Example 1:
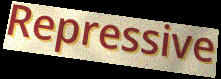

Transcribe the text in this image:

Repressive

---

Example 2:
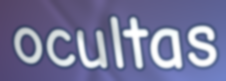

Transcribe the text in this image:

ocultas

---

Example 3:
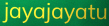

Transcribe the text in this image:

jayajayatu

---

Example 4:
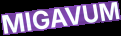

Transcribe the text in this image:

MIGAVUM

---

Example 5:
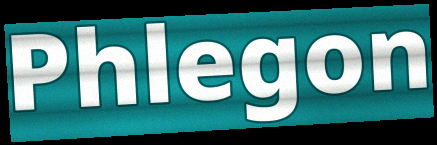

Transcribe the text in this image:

Phlegon